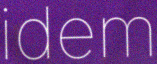
idem